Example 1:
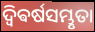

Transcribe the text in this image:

ଦ୍ଵିଵର୍ଷସମ୍ଭୃତା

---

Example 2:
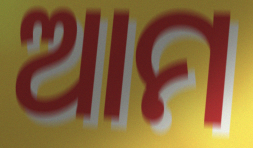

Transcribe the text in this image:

ଆମ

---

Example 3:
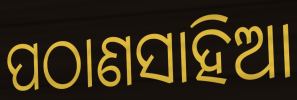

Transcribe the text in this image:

ପଠାଣସାହିଆ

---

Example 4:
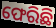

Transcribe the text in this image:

ଫେରିଛି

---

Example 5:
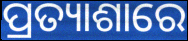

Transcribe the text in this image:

ପ୍ରତ୍ୟାଶାରେ